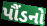
પૌંડનો